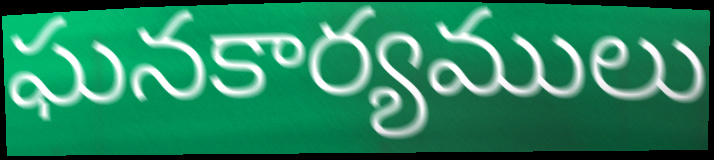
ఘనకార్యములు